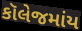
કૉલેજમાંય